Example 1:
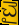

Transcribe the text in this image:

చై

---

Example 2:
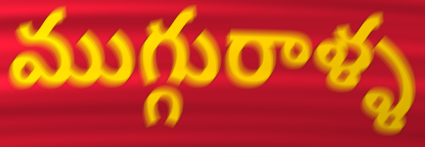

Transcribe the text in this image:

ముగ్గురాళ్ళ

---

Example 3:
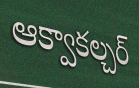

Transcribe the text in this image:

ఆక్వాకల్చర్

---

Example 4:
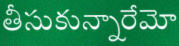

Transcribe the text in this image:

తీసుకున్నారేమో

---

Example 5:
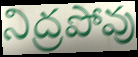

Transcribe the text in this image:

నిద్రపోవు